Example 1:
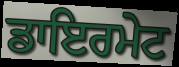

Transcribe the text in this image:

ਡਾਇਰਮੇਟ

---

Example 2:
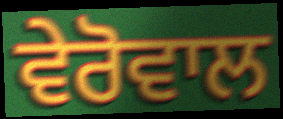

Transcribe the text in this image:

ਵੇਰੋਵਾਲ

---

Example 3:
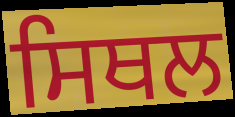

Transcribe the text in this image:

ਸਿਥਲ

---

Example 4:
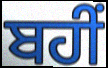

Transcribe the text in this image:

ਬਹੀਂ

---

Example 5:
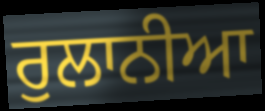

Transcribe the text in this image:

ਰੁਲਾਨੀਆ